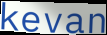
kevan